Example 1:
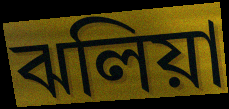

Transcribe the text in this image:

ঝলিয়া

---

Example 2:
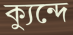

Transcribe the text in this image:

ক্যুন্দে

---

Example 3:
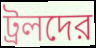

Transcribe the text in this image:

ট্রলদের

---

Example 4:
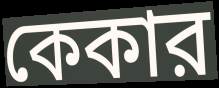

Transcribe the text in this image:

কেকার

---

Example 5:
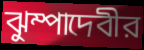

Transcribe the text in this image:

ঝুম্পাদেবীর